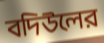
বদিউলের